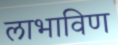
लाभाविण